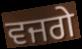
ਵਜਗੇ